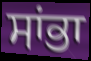
ਸਾਂਭਾ